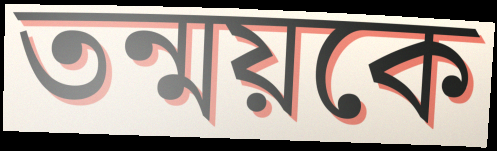
তন্ময়কে